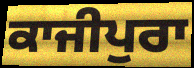
ਕਾਜੀਪੁਰਾ